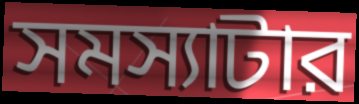
সমস্যাটার